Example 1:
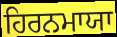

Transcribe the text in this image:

ਹਿਰਨਮਾਯਾ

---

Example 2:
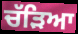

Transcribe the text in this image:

ਚੱੜਿਆ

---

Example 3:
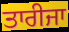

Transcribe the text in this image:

ਤਾਰੀਜਾ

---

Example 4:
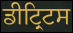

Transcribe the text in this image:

ਡੀਟ੍ਰਿਟਸ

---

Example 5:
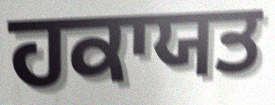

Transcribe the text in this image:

ਹਕਾਯਤ